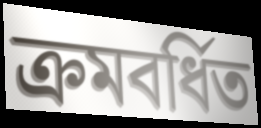
ক্রমবর্ধিত